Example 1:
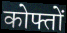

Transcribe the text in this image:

कोफ्तों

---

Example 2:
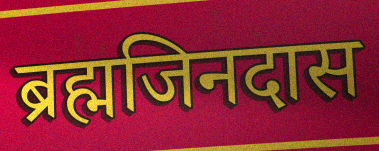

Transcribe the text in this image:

ब्रह्मजिनदास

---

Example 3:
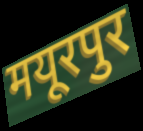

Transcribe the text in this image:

मयूरपुर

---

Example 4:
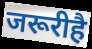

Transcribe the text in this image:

जरूरीहै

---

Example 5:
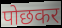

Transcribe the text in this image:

पोछकर